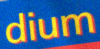
dium